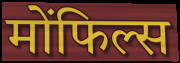
मोंफिल्स